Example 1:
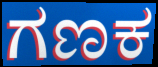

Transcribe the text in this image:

ಗಣಕ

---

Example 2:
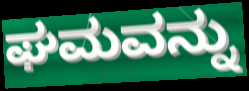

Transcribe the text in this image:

ಘಮವನ್ನು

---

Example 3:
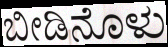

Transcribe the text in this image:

ಬೀಡಿನೊಳು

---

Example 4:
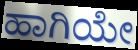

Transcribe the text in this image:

ಹಾಗಿಯೇ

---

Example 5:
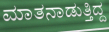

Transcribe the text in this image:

ಮಾತನಾಡುತ್ತಿದ್ದ